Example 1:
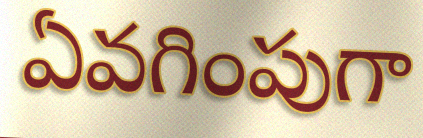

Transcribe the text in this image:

ఏవగింపుగా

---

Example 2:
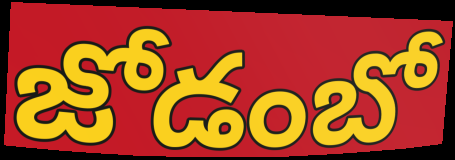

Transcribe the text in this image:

జోడంబో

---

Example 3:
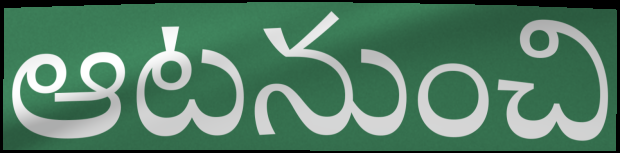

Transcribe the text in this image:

ఆటనుంచి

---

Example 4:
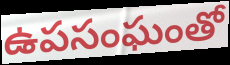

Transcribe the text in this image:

ఉపసంఘంతో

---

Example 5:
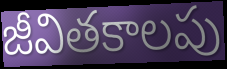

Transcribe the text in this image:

జీవితకాలపు